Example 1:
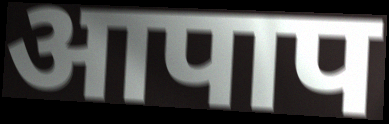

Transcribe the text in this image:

आपाप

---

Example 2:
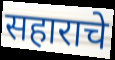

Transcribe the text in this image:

सहाराचे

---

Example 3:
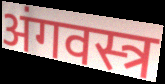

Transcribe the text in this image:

अंगवस्त्र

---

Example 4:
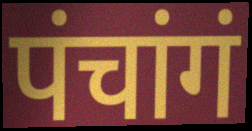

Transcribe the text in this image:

पंचांगं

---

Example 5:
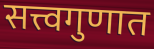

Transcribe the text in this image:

सत्त्वगुणात